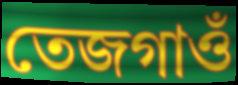
তেজগাওঁ